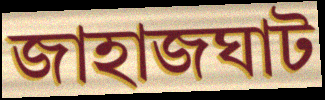
জাহাজঘাট